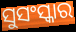
ସୁସଂସ୍କାର